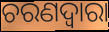
ଚରଣଦ୍ୱାରା